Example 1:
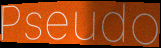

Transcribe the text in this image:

Pseudo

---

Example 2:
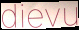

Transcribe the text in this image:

dievu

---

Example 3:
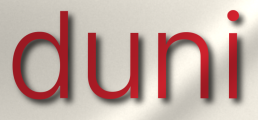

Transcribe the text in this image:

duni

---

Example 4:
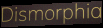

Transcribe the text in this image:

Dismorphia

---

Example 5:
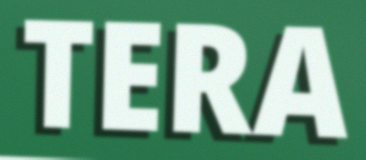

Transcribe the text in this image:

TERA